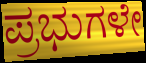
ಪ್ರಭುಗಳೇ